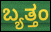
ಬ್ಯತ್ತಂ